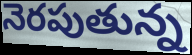
నెరపుతున్న